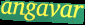
angavar